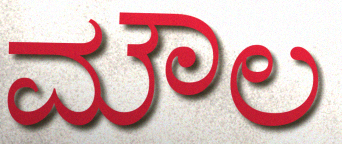
ಮೌಲ